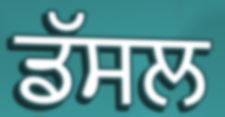
ਡੱਸਲ